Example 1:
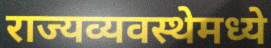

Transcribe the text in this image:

राज्यव्यवस्थेमध्ये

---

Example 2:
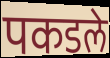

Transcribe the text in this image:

पकडले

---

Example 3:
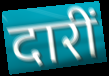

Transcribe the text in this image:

दारीं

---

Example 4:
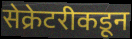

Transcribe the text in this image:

सेक्रेटरीकडून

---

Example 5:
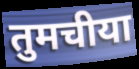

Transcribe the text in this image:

तुमचीया